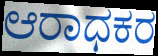
ಆರಾಧಕರ